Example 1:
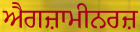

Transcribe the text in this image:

ਐਗਜ਼ਾਮੀਨਰਜ਼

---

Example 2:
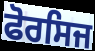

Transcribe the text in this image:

ਫੋਰਸਿਜ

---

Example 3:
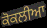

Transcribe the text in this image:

ਕੋਕਲੀਆ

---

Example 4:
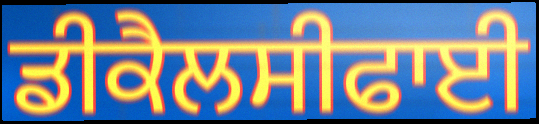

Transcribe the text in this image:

ਡੀਕੈਲਸੀਫਾਈ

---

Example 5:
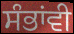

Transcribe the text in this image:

ਸੰਭਾਂਵੀ